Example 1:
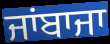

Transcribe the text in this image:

ਜਾਂਬਾਜਾ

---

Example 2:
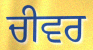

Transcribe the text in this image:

ਚੀਵਰ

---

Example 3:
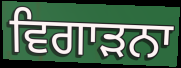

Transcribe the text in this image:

ਵਿਗਾੜਨਾ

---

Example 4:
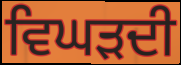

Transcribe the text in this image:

ਵਿਘੜਦੀ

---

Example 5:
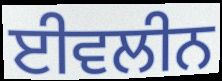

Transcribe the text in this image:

ਈਵਲੀਨ